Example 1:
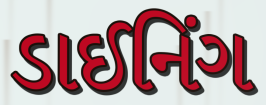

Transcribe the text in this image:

ડાઈનિંગ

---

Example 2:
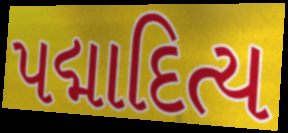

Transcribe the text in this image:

પદ્માદિત્ય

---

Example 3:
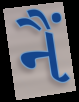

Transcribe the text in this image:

નૈં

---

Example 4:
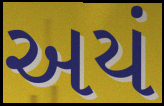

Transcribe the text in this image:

અયં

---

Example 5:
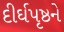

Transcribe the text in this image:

દીર્ઘપૃષ્ઠને